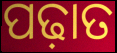
ପଢ଼ାତ